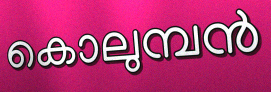
കൊലുമ്പൻ